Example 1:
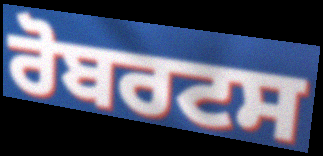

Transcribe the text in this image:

ਰੋਬਰਟਸ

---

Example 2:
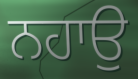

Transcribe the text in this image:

ਨਹਾਉ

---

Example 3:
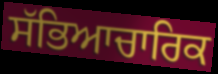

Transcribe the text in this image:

ਸੱਭਿਆਚਾਰਿਕ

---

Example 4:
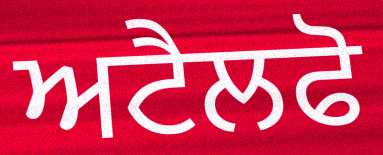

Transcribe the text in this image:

ਅਟੈਲਫੋ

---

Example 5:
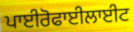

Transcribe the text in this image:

ਪਾਈਰੋਫਾਈਲਾਈਟ